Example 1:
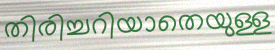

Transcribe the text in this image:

തിരിച്ചറിയാതെയുള്ള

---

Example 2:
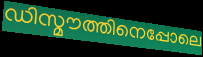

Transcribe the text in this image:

ഡിസ്മൗത്തിനെപ്പോലെ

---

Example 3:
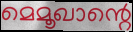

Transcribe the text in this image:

മെമൂഖാന്റെ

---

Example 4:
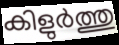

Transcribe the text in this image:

കിളുർത്തു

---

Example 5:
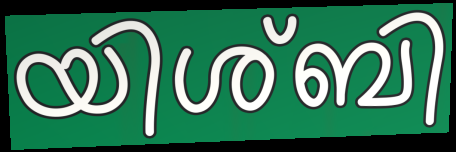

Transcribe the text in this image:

യിശ്ബി